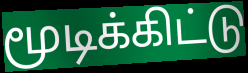
மூடிக்கிட்டு